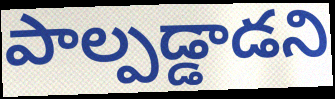
పాల్పడ్డాడని